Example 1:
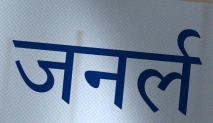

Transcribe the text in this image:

जनर्ल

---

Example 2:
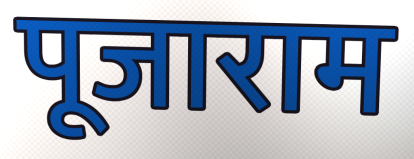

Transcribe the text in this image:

पूजाराम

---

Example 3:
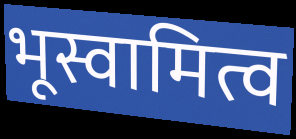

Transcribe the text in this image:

भूस्वामित्व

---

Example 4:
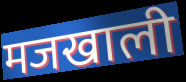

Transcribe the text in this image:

मजखाली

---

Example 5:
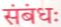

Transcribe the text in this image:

संबंधः